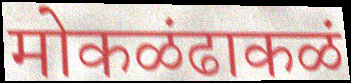
मोकळंढाकळं